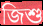
জিশু